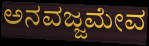
ಅನವಜ್ಜಮೇವ